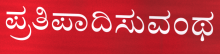
ಪ್ರತಿಪಾದಿಸುವಂಥ